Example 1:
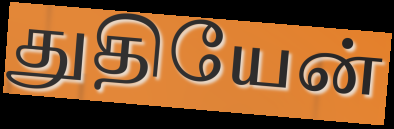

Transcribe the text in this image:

துதியேன்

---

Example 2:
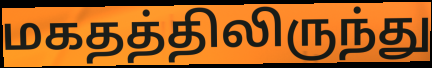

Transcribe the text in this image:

மகதத்திலிருந்து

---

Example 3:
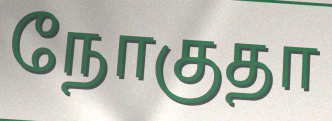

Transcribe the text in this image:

நோகுதா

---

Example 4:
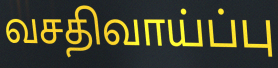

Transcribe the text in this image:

வசதிவாய்ப்பு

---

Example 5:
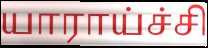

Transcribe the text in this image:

யாராய்ச்சி